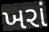
ખરાં